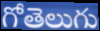
గోతెలుగు